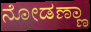
ನೋಡಣ್ಣಾ